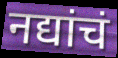
नद्यांचं